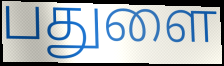
பதுளை